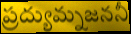
ప్రద్యుమ్నజననీ